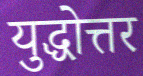
युद्धोत्तर